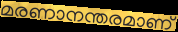
മരണാനന്തരമാണ്